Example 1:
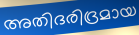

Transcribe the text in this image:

അതിദരിദ്രമായ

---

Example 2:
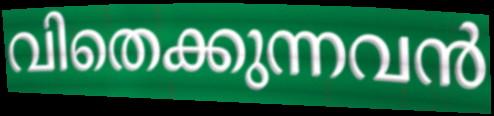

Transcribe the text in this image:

വിതെക്കുന്നവൻ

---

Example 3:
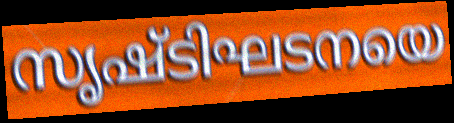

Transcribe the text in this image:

സൃഷ്ടിഘടനയെ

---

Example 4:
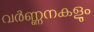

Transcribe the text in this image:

വർണ്ണനകളും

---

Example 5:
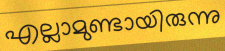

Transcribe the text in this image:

എല്ലാമുണ്ടായിരുന്നു